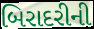
બિરાદરીની